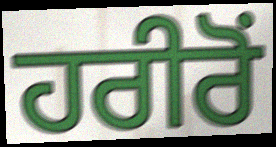
ਹਰੀਰੋਂ